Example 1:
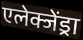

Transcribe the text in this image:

एलेक्जेंड्रा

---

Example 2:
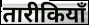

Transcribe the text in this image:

तारीकियाँ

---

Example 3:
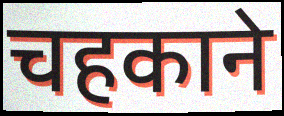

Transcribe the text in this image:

चहकाने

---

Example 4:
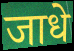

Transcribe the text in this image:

जाधे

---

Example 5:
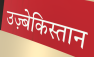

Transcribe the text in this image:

उज़्बेकिस्तान